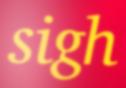
sigh